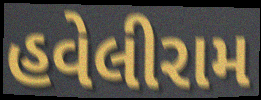
હવેલીરામ